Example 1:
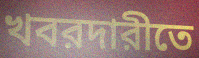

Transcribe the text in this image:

খবরদারীতে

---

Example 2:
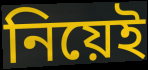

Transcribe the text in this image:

নিয়েই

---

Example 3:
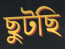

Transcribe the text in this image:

ছুটছি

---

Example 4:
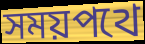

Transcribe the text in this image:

সময়পথে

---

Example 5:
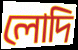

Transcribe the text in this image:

লোদি